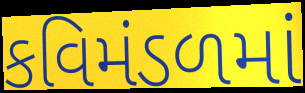
કવિમંડળમાં